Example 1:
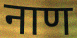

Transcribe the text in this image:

नाण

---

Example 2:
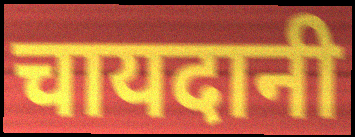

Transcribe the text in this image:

चायदानी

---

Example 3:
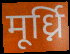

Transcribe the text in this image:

मूर्ध्नि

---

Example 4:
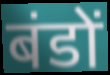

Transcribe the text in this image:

बंडों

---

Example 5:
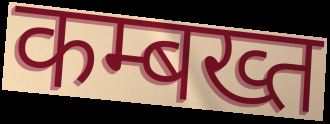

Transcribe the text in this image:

कम्बख्त